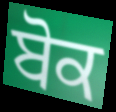
ਬੋਕ